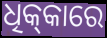
ଧିକ୍‌କାରେ